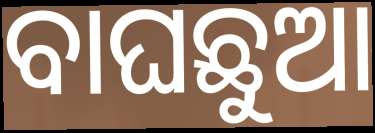
ବାଘଛୁଆ